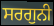
ਸਰਗੁਨੀ